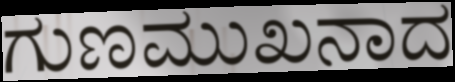
ಗುಣಮುಖನಾದ